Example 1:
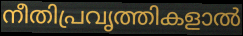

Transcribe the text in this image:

നീതിപ്രവൃത്തികളാൽ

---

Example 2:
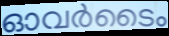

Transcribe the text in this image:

ഓവർടൈം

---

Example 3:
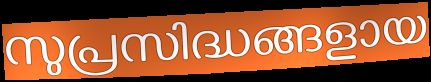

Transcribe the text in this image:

സുപ്രസിദ്ധങ്ങളായ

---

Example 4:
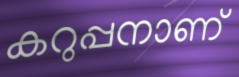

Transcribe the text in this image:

കറുപ്പനാണ്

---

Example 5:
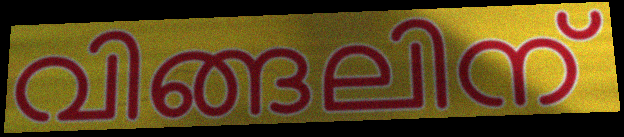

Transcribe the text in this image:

വിങ്ങലിന്